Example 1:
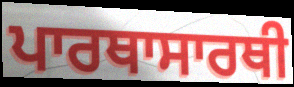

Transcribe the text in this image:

ਪਾਰਥਾਸਾਰਥੀ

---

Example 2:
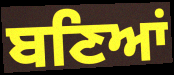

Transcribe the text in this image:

ਬਣਿਆਂ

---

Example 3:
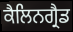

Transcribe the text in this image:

ਕੈਲਿਨਗ੍ਰੈਡ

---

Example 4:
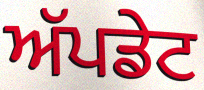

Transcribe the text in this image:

ਅੱਪਡੇਟ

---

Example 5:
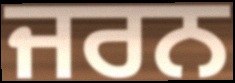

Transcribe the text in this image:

ਜਰਨ